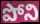
పోని